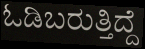
ಓಡಿಬರುತ್ತಿದ್ದೆ